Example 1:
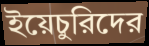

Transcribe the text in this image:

ইয়েচুরিদের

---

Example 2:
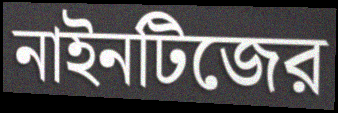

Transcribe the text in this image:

নাইনটিজের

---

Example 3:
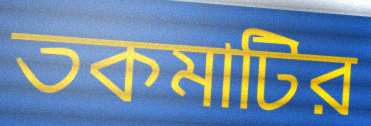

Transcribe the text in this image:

তকমাটির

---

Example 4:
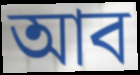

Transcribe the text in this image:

আব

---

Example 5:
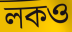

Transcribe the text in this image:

লকও